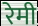
रेमी